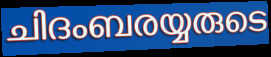
ചിദംബരയ്യരുടെ